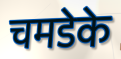
चमडेके